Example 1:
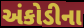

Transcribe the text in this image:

અંકોડીના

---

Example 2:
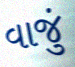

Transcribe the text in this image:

વાજું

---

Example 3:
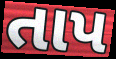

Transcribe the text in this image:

તાપ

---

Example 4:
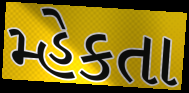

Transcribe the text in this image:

મ્હેકતા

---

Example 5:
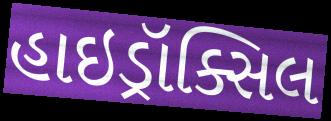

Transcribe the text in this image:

હાઇડ્રૉક્સિલ